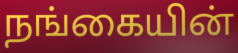
நங்கையின்